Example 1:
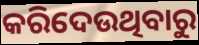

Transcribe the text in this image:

କରିଦେଉଥିବାରୁ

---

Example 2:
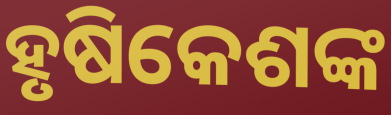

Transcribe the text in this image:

ହୃଷିକେଶଙ୍କ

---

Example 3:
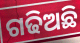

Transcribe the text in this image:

ଗଢିଅଛି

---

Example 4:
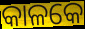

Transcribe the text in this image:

କାଳକେ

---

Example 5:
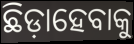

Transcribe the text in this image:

ଛିଡ଼ାହେବାକୁ